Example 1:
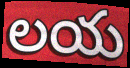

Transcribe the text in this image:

లయ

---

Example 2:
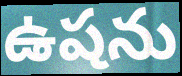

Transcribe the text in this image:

ఉషను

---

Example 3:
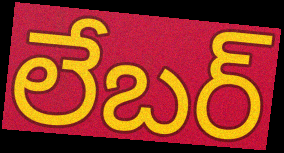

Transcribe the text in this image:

లేబర్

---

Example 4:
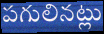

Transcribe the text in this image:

పగులినట్లు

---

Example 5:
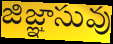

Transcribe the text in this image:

జిజ్ఞాసువు